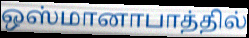
ஒஸ்மானாபாத்தில்